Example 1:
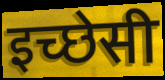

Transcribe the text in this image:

इच्छेसी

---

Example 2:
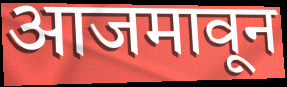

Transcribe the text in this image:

आजमावून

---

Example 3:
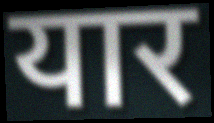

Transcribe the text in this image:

यार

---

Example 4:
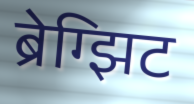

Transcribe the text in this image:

ब्रेग्झिट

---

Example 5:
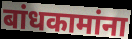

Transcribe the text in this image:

बांधकामांना